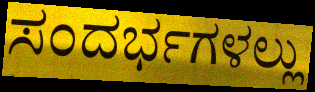
ಸಂದರ್ಭಗಳಲ್ಲು